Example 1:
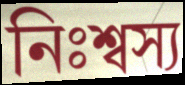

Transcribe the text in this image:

নিঃশ্বস্য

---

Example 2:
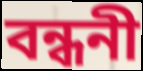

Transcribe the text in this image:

বন্ধনী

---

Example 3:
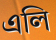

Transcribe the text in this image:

এলি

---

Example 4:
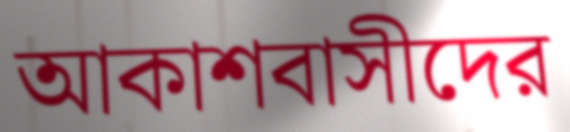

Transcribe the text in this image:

আকাশবাসীদের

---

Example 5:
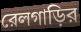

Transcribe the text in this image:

রেলগাড়ির